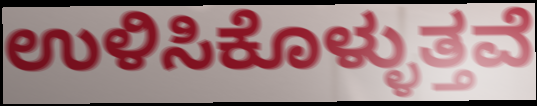
ಉಳಿಸಿಕೊಳ್ಳುತ್ತವೆ